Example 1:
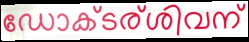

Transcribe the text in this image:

ഡോക്ടര്ശിവന്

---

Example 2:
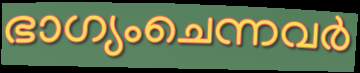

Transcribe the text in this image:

ഭാഗ്യംചെന്നവർ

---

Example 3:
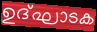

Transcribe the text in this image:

ഉദ്ഘാടക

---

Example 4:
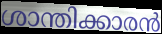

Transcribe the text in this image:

ശാന്തിക്കാരൻ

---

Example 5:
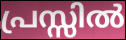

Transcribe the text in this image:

പ്രസ്സിൽ